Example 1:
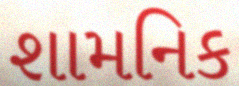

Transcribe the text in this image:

શામનિક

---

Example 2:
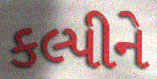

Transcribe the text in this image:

કલ્પીને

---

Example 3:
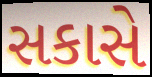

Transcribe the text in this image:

સકાસે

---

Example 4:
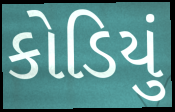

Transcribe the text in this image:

કોડિયું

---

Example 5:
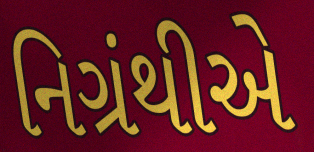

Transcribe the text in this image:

નિગ્રંથીએ